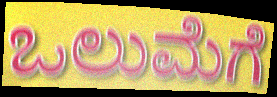
ಒಲುಮೆಗೆ